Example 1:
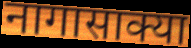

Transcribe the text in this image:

नागासाक्या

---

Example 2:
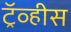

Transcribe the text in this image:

ट्रॅव्हीस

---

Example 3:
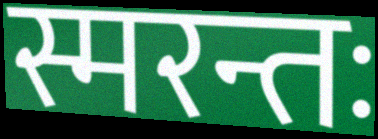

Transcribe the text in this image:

स्मरन्तः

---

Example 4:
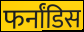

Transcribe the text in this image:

फर्नांडिस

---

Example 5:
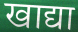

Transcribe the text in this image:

खाद्या